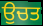
ਉਚਤ